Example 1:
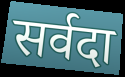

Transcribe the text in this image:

सर्वदा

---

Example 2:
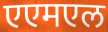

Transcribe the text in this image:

एएमएल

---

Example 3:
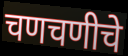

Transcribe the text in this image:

चणचणीचे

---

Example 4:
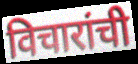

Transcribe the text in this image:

विचारांची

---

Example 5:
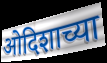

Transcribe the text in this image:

ओदिशाच्या